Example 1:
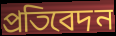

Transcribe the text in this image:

প্ৰতিবেদন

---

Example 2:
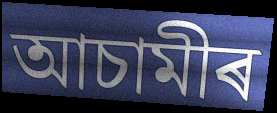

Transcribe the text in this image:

আচামীৰ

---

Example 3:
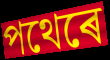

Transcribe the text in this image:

পথেৰে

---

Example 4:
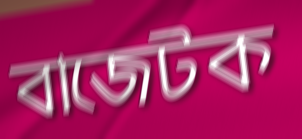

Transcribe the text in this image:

বাজেটক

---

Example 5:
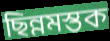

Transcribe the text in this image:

ছিন্নমস্তক